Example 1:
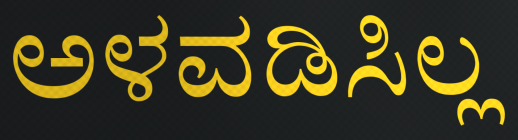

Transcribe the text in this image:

ಅಳವಡಿಸಿಲ್ಲ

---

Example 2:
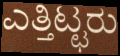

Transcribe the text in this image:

ಎತ್ತಿಟ್ಟರು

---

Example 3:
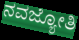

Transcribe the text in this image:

ನವಜ್ಯೋತಿ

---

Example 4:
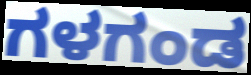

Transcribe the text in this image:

ಗಳಗಂಡ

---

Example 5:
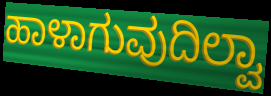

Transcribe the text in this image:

ಹಾಳಾಗುವುದಿಲ್ವಾ